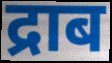
द्राब